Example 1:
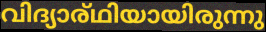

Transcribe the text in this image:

വിദ്യാര്ഥിയായിരുന്നു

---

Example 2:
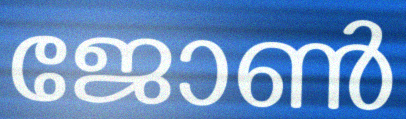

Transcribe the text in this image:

ജോൺ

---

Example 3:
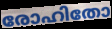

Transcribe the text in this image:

രോഹിതോ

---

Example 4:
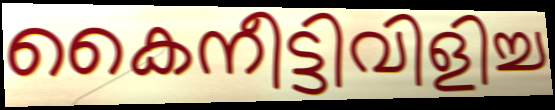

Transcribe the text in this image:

കൈനീട്ടിവിളിച്ച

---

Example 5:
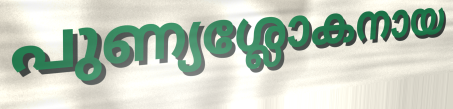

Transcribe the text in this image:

പുണ്യശ്ലോകനായ